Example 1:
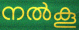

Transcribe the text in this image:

നൽകൂ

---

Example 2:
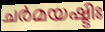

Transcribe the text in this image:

ചർമയഷ്ടിഃ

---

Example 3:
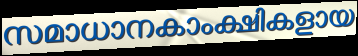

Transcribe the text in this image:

സമാധാനകാംക്ഷികളായ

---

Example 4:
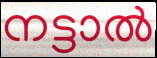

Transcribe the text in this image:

നട്ടാൽ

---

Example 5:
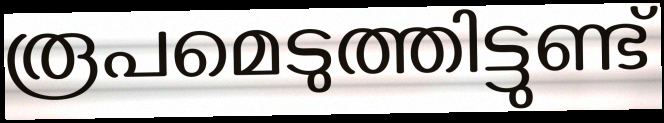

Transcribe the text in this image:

രൂപമെടുത്തിട്ടുണ്ട്